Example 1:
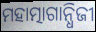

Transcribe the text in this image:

ମହାତ୍ମାଗାନ୍ଧିଜୀ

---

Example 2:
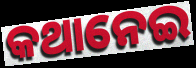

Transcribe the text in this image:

କଥାନେଇ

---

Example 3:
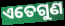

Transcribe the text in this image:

ଏତେଗୁଣ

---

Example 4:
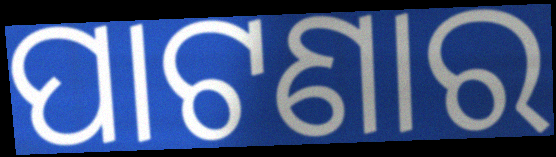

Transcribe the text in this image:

ପାଟଣାର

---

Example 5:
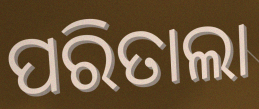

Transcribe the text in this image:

ପରିତାଲା